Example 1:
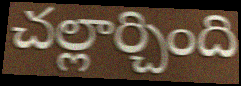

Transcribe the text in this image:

చల్లార్చింది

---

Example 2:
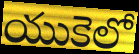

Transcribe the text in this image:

యుకెలో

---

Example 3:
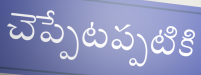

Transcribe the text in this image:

చెప్పేటప్పటికి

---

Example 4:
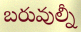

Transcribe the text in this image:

బరువుల్నీ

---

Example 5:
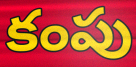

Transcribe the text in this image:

కంపు